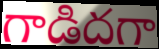
గాడిదగా